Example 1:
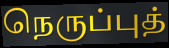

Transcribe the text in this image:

நெருப்புத்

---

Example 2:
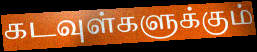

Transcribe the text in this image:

கடவுள்களுக்கும்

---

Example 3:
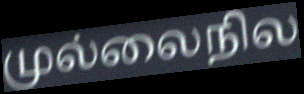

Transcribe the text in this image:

முல்லைநில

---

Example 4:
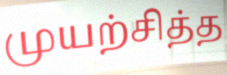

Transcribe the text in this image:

முயற்சித்த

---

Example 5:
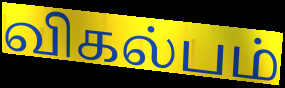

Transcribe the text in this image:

விகல்பம்